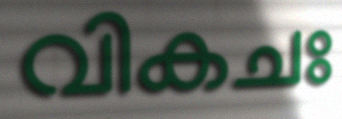
വികചഃ